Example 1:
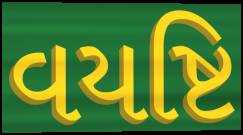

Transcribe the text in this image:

વયષ્ટિ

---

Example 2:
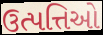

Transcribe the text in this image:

ઉત્પત્તિઓ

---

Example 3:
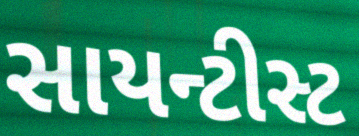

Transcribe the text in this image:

સાયન્ટીસ્ટ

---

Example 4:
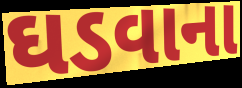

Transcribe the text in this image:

ઘડવાના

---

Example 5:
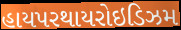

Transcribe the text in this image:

હાયપરથાયરોઇડિઝમ